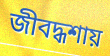
জীবদ্ধশায়